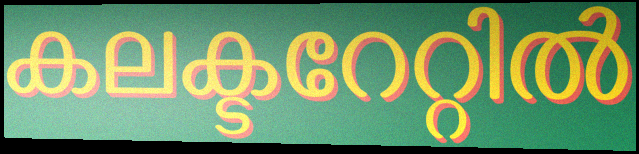
കലക്ടറേറ്റിൽ